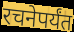
रचनेपर्यंत